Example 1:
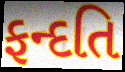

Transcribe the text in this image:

ફન્દતિ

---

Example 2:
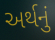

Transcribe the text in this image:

અર્થનું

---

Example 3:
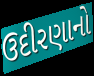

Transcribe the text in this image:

ઉદીરણાનો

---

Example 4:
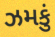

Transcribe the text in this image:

ઝમકું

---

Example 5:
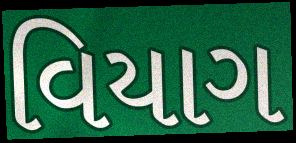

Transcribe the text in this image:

વિયાગ